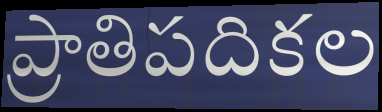
ప్రాతిపదికల